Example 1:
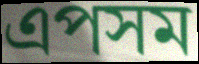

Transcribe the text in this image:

এপসম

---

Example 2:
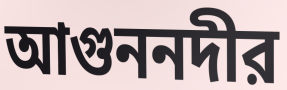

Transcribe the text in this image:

আগুননদীর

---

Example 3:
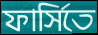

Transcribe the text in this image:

ফার্সিতে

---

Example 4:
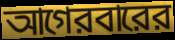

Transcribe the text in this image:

আগেরবারের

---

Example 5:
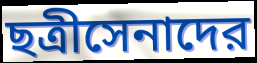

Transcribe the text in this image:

ছত্রীসেনাদের